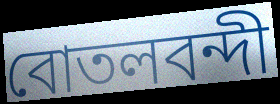
বোতলবন্দী